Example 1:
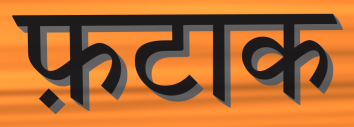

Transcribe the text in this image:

फ़टाक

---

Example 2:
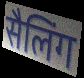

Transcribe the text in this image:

सैलिंग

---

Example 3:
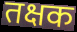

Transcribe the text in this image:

तक्षक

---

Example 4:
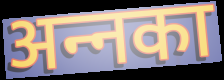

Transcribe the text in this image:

अन्नका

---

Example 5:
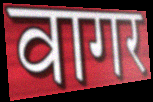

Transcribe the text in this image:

वागर